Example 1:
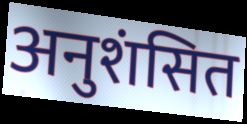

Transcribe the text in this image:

अनुशंसित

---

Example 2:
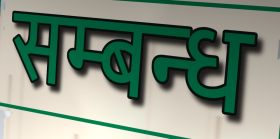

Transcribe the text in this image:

सम्बन्ध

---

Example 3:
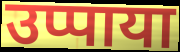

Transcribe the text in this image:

उप्पाया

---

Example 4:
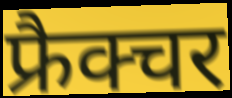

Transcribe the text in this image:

फ्रैक्चर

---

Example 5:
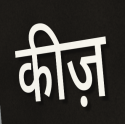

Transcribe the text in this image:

कीज़